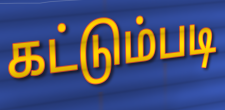
கட்டும்படி